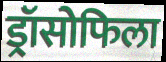
ड्रॉसोफिला